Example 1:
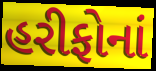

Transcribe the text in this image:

હરીફોનાં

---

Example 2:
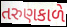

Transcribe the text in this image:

તરુણકાળે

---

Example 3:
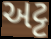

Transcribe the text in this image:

અટ્ટ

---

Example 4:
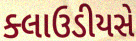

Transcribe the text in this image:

ક્લાઉડીયસે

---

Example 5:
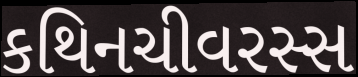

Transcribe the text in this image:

કથિનચીવરસ્સ